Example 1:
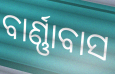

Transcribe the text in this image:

ବାର୍ଣ୍ଣାବାସ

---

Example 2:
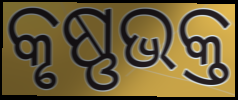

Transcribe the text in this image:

କୃଷ୍ଣଭକ୍ତ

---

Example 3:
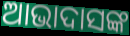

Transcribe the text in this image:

ଆଭାଦାସଙ୍କ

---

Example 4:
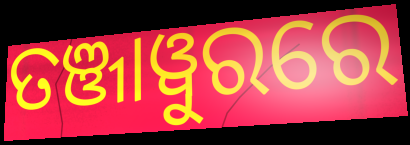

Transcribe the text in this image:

ତଞ୍ଜାୱୁରରେ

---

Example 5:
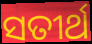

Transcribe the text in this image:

ସତୀର୍ଥ